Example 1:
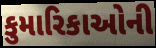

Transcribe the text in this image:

કુમારિકાઓની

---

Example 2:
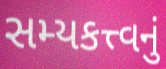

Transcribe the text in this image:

સમ્યકત્ત્વનું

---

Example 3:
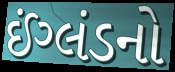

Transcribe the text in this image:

ઈંગ્લંડનો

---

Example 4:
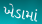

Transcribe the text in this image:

ખેડામાં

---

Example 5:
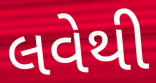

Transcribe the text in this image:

લવેથી